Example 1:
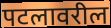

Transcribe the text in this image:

पटलावरील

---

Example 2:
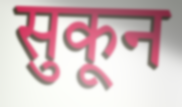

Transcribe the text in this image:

सुकून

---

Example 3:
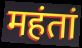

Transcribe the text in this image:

महंतां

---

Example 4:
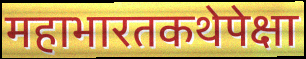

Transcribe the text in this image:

महाभारतकथेपेक्षा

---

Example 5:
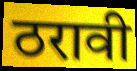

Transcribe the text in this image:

ठरावी